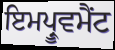
ਇਮਪ੍ਰੂਵਮੈਂਟ